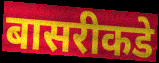
बासरीकडे